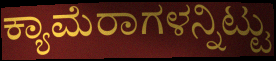
ಕ್ಯಾಮೆರಾಗಳನ್ನಿಟ್ಟು